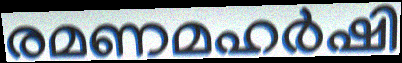
രമണമഹർഷി